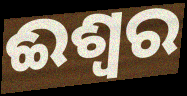
ଈଶ୍ବର